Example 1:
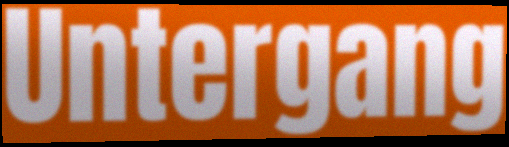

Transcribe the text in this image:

Untergang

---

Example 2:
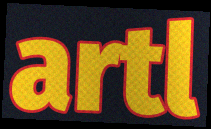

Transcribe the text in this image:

artl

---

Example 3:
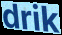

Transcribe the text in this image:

drik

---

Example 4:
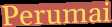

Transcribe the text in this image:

Perumai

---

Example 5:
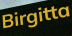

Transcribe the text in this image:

Birgitta